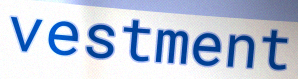
vestment